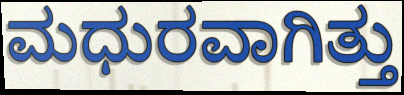
ಮಧುರವಾಗಿತ್ತು